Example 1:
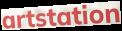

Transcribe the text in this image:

artstation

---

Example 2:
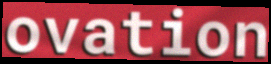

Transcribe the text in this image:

ovation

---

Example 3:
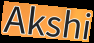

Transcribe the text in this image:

Akshi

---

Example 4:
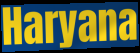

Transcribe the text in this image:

Haryana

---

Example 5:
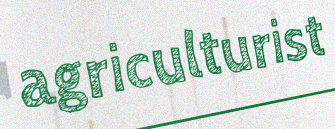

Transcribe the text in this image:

agriculturist